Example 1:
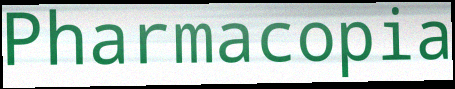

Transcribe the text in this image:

Pharmacopia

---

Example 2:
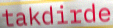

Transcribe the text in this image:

takdirde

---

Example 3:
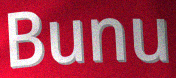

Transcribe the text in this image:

Bunu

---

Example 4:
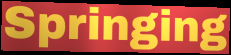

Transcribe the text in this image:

Springing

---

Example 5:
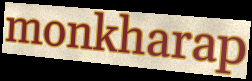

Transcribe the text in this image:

monkharap